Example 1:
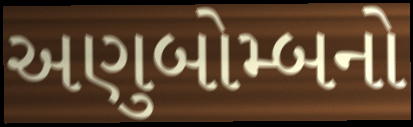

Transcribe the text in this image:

અણુબોમ્બનો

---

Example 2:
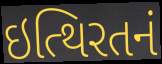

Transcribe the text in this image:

ઇત્થિરતનં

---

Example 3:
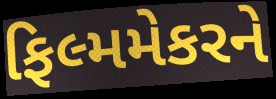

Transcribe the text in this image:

ફિલ્મમેકરને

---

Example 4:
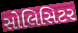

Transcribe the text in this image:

સોલિસિટર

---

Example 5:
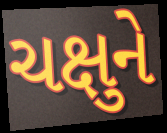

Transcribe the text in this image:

ચક્ષુને